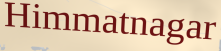
Himmatnagar